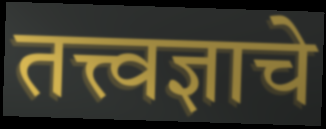
तत्त्वज्ञाचे